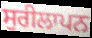
ਸੁਰੀਲਾਪਨ